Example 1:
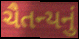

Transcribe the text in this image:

ચૈતન્યનું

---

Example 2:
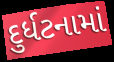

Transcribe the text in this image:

દુર્ધટનામાં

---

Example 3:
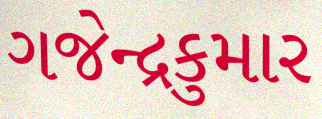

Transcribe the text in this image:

ગજેન્દ્રકુમાર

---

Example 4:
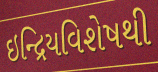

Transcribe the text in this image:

ઇન્દ્રિયવિશેષથી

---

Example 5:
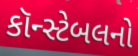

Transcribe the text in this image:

કૉન્સ્ટેબલનો